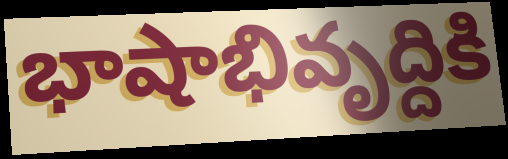
భాషాభివృద్దికి